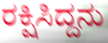
ರಕ್ಷಿಸಿದ್ದನು